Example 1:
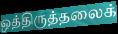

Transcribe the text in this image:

ஒத்திருத்தலைக்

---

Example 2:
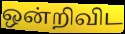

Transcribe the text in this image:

ஒன்றிவிட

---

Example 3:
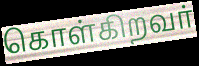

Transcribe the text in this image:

கொள்கிறவர்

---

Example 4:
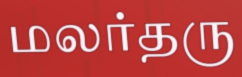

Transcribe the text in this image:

மலர்தரு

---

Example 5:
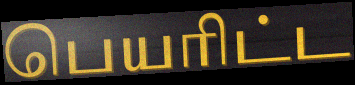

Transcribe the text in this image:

பெயரிட்ட